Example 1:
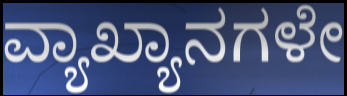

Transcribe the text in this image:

ವ್ಯಾಖ್ಯಾನಗಳೇ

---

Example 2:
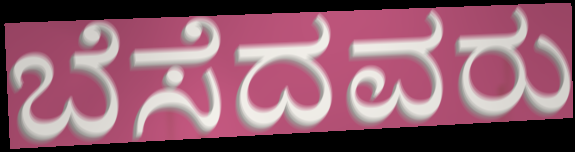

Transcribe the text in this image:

ಬೆಸೆದವರು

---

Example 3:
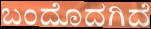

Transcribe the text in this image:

ಬಂದೊದಗಿದೆ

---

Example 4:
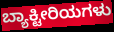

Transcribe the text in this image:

ಬ್ಯಾಕ್ಟೀರಿಯಗಳು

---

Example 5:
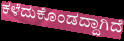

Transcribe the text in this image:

ಕಳೆದುಕೊಂಡದ್ದಾಗಿದೆ